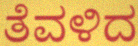
ತೆವಳಿದ